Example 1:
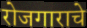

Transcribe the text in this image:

रोजगाराचे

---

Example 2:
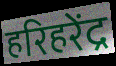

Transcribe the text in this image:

हरिहरेंद्र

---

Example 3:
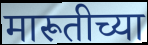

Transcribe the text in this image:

मारूतीच्या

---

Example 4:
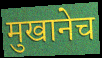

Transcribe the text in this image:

मुखानेच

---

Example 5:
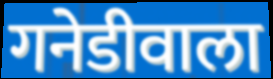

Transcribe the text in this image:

गनेडीवाला